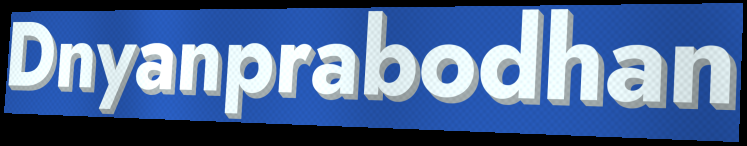
Dnyanprabodhan